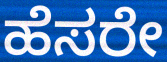
ಹೆಸರೇ